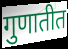
गुणातीत